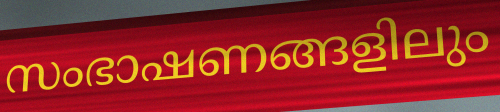
സംഭാഷണങ്ങളിലും